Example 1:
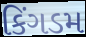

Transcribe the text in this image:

કિંગડમ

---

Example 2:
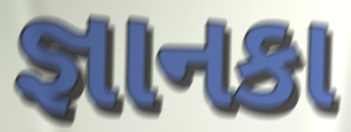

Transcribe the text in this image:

જ્ઞાનકા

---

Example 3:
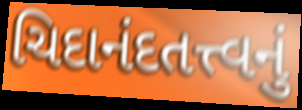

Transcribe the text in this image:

ચિદાનંદતત્ત્વનું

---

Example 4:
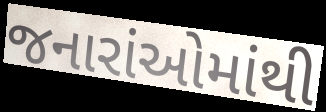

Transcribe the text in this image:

જનારાંઓમાંથી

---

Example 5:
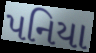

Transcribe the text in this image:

પનિયા